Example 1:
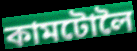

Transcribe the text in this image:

কামটোলৈ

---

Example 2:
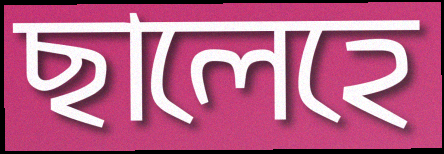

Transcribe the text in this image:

ছালেহে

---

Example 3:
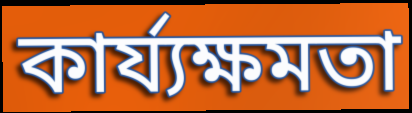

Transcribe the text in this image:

কাৰ্য্যক্ষমতা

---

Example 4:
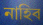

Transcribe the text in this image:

নাহিব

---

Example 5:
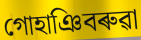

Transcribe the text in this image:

গোহাঞিবৰুৱা